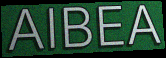
AIBEA